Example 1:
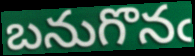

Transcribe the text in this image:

బనుగొనఁ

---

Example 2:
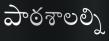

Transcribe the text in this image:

పాఠశాలల్ని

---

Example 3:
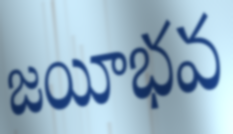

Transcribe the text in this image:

జయీభవ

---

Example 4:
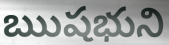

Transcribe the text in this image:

ఋషభుని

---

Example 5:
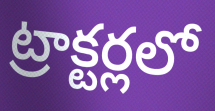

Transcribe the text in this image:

ట్రాక్టర్లలో